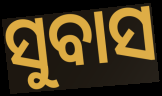
ସୁବାସ